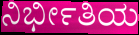
ನಿರ್ಭೀತಿಯ